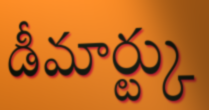
డీమార్ట్కు